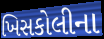
ખિસકોલીના